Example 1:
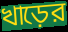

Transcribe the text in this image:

খাড়ের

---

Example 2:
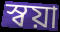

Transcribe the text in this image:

স্বয়া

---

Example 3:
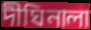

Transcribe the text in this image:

দীঘিনালা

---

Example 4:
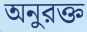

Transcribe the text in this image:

অনুরক্ত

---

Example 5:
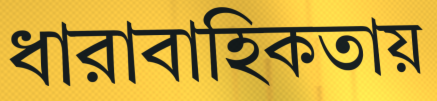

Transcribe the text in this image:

ধারাবাহিকতায়